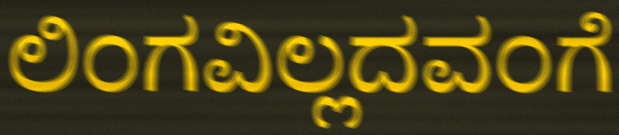
ಲಿಂಗವಿಲ್ಲದವಂಗೆ